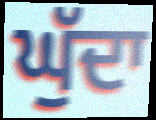
ਘੁੱਦਾ